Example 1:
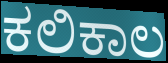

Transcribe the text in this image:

ಕಲಿಕಾಲ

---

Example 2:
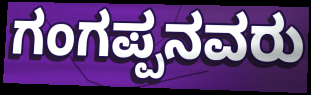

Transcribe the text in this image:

ಗಂಗಪ್ಪನವರು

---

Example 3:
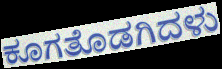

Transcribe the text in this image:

ಕೂಗತೊಡಗಿದಳು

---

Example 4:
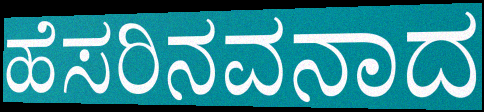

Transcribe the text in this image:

ಹೆಸರಿನವನಾದ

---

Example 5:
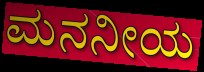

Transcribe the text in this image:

ಮನನೀಯ